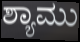
ಶ್ಯಾಮು